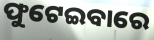
ଫୁଟେଇବାରେ